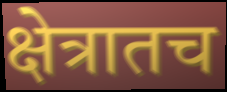
क्षेत्रातच